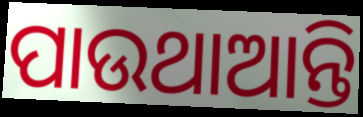
ପାଉଥାଆନ୍ତି